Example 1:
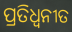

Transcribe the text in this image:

ପ୍ରତିଧ୍ବନୀତ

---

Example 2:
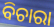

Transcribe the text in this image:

ବିଚାରା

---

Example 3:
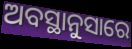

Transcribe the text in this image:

ଅବସ୍ଥାନୁସାରେ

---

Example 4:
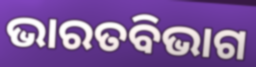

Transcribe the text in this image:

ଭାରତବିଭାଗ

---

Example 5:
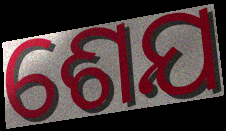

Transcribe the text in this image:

ଶେଯ